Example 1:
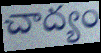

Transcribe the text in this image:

చాద్యం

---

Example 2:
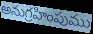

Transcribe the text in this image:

అనుగ్రహింపుము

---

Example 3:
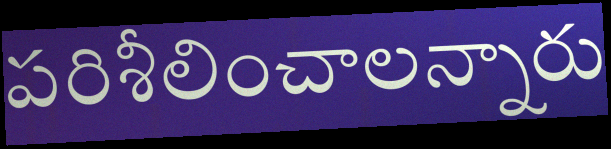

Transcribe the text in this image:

పరిశీలించాలన్నారు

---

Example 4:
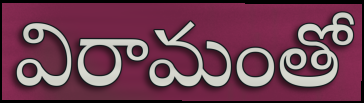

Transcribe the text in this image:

విరామంతో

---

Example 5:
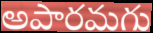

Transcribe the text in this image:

అపారమగు